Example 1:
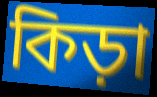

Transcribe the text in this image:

কিড়া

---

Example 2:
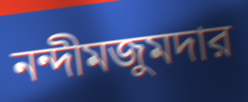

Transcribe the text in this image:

নন্দীমজুমদার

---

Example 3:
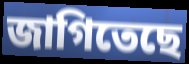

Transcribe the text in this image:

জাগিতেছে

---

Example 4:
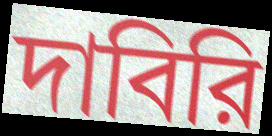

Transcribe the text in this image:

দাবিরি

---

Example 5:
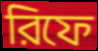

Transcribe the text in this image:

রিফে